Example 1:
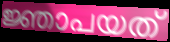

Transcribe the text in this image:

ജ്ഞാപയത്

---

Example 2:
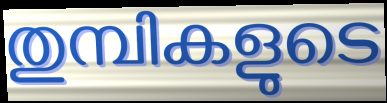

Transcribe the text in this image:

തുമ്പികളുടെ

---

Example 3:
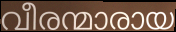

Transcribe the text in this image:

വീരന്മാരായ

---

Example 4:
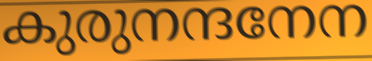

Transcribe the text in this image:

കുരുനന്ദനേന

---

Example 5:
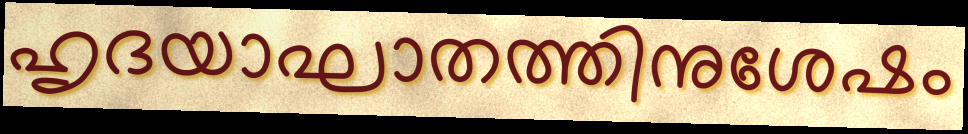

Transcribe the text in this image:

ഹൃദയാഘാതത്തിനുശേഷം